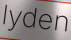
lyden